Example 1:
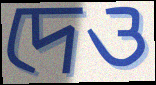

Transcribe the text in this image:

দেও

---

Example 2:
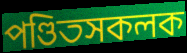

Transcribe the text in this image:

পণ্ডিতসকলক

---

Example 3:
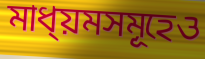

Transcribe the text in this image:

মাধ্য়মসমূহেও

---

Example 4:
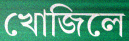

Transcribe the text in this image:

খোজিলে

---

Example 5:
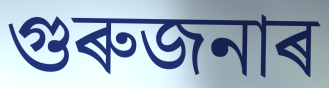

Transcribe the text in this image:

গুৰুজনাৰ